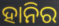
ହାନିର